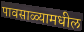
पावसाळ्यामधील